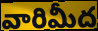
వారిమీద